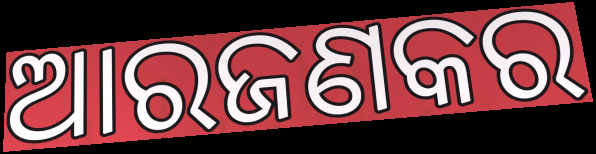
ଆରଜଣକର